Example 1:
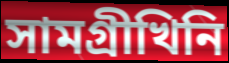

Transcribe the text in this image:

সামগ্ৰীখিনি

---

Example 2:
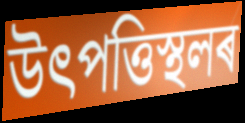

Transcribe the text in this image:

উৎপত্তিস্থলৰ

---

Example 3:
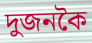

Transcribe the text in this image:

দুজনকৈ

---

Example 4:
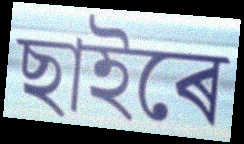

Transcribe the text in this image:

ছাইৰে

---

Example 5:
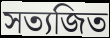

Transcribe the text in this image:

সত্যজিত